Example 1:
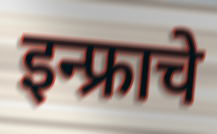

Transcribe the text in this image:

इन्फ्राचे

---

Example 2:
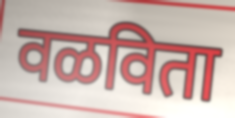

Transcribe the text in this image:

वळविता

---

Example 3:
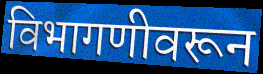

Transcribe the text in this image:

विभागणीवरून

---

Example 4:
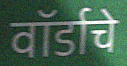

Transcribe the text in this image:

वॉर्डाचे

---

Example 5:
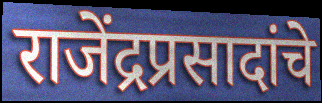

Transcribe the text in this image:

राजेंद्रप्रसादांचे